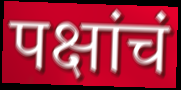
पक्षांचं